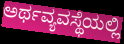
ಅರ್ಥವ್ಯವಸ್ಥೆಯಲ್ಲಿ